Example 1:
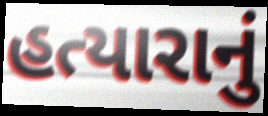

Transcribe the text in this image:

હત્યારાનું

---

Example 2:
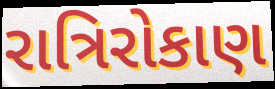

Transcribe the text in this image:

રાત્રિરોકાણ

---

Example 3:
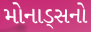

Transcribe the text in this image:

મોનાડ્સનો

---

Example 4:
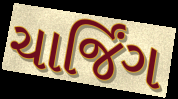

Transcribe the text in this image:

ચાર્જિંગ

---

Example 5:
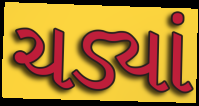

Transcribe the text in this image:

ચડ્યાં